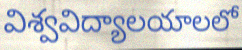
విశ్వవిద్యాలయాలలో